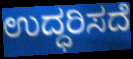
ಉದ್ಧರಿಸದೆ